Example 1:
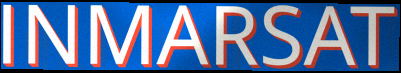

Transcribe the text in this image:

INMARSAT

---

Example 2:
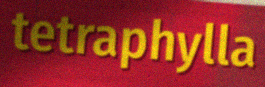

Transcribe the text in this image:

tetraphylla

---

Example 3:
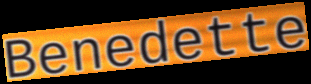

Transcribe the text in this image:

Benedette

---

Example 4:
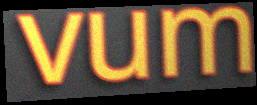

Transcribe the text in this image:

vum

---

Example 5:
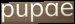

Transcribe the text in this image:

pupae